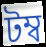
টম্ব